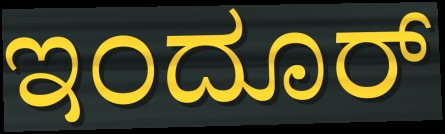
ಇಂದೂರ್